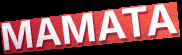
MAMATA